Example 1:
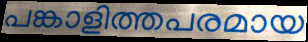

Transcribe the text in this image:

പങ്കാളിത്തപരമായ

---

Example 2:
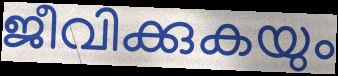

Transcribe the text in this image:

ജീവിക്കുകയും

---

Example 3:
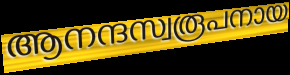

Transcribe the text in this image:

ആനന്ദസ്വരൂപനായ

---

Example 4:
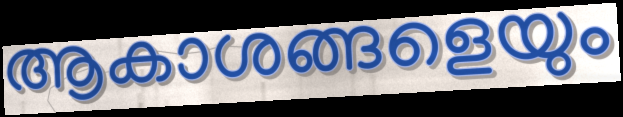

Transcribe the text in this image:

ആകാശങ്ങളെയും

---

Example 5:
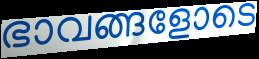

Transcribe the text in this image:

ഭാവങ്ങളോടെ